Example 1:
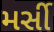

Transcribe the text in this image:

મર્સી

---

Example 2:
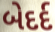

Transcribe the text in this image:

બેદર્દ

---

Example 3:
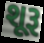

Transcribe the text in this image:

શૂરૂ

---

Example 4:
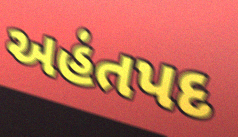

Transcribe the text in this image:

અહંતપદ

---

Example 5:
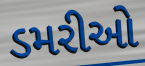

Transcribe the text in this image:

ડમરીઓ